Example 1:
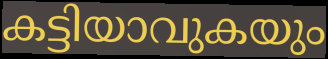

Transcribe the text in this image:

കട്ടിയാവുകയും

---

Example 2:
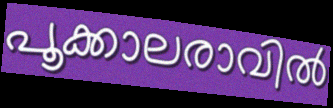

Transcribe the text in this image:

പൂക്കാലരാവിൽ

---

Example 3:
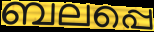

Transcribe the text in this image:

ബലപ്പെ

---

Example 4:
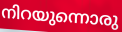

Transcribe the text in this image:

നിറയുന്നൊരു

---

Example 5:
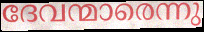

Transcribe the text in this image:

ദേവന്മാരെന്നു